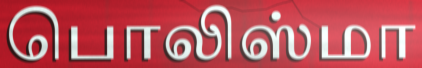
பொலிஸ்மா